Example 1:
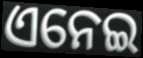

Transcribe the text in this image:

ଏନେଇ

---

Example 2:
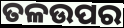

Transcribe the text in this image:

ତଳଉପର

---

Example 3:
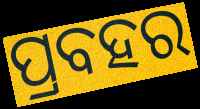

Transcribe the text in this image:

ପ୍ରବହର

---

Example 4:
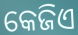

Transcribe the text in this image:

କେଜିଏ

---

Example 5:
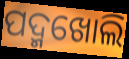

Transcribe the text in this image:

ପଦ୍ମଖୋଲି